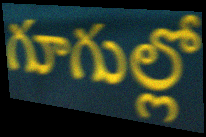
గూగుల్లో